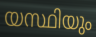
യസ്ഥിയും